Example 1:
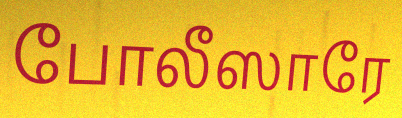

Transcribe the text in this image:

போலீஸாரே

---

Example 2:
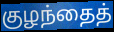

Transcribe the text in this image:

குழந்தைத்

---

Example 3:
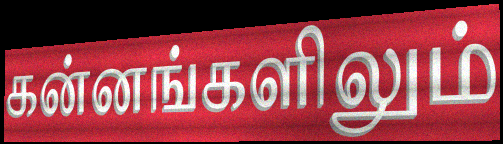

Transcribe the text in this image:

கன்னங்களிலும்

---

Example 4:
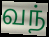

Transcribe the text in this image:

வந்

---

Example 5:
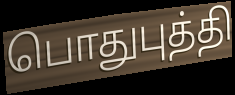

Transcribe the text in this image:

பொதுபுத்தி